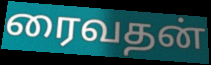
ரைவதன்